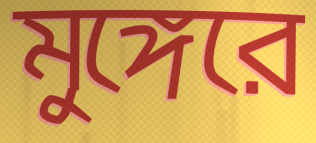
মুঙ্গেরে